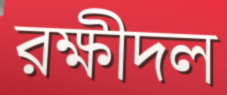
রক্ষীদল